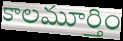
కాలమూర్తిం